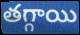
తగ్గాయి